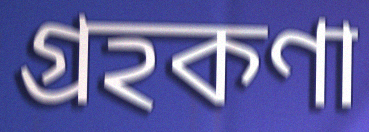
গ্রহকণা